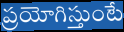
ప్రయోగిస్తుంటే